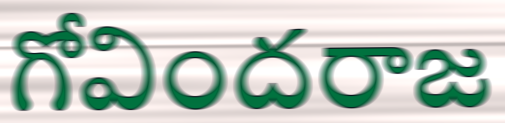
గోవిందరాజ